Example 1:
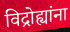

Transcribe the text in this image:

विद्रोह्यांना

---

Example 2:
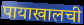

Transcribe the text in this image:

पायाखालची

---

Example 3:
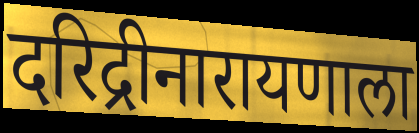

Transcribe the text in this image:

दरिद्रीनारायणाला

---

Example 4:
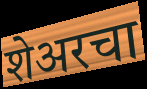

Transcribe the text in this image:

शेअरचा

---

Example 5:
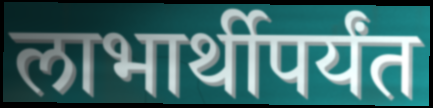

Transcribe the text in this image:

लाभार्थीपर्यंत